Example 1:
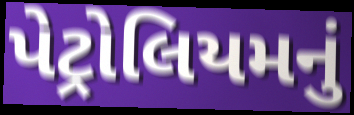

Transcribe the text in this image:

પેટ્રોલિયમનું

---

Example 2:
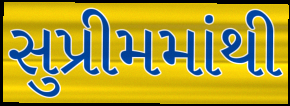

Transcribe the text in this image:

સુપ્રીમમાંથી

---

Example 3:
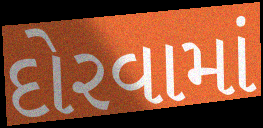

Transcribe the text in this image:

દોરવામાં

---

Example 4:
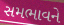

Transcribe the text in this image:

સમભાવને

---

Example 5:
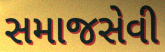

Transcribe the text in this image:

સમાજસેવી